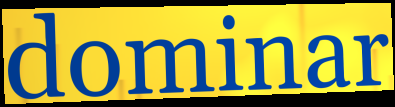
dominar